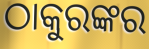
ଠାକୁରଙ୍କର